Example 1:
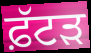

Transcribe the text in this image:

ਫ਼ੱਟੜ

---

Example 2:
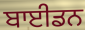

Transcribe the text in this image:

ਬਾਈਡਨ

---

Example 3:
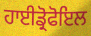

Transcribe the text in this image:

ਹਾਈਡ੍ਰੋਫੋਇਲ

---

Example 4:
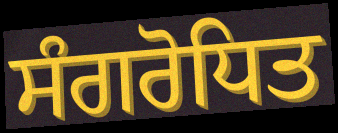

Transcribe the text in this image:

ਸੰਗਰੋਧਿਤ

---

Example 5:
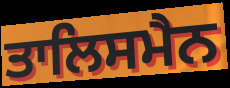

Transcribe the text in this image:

ਤਾਲਿਸਮੈਨ